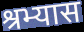
श्रभ्यास